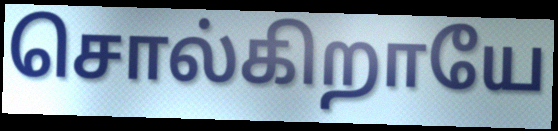
சொல்கிறாயே